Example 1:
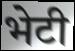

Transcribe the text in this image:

भेटी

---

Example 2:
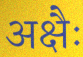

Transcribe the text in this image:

अक्षैः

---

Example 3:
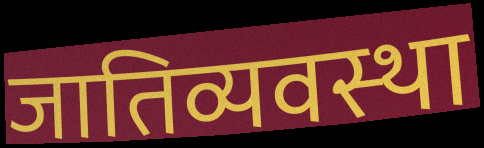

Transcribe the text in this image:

जातिव्यवस्था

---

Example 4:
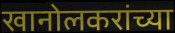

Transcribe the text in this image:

खानोलकरांच्या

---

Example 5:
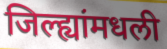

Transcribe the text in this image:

जिल्ह्यांमधली